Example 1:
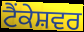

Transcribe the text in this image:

ਟੈਂਕੇਸ਼ਵਰ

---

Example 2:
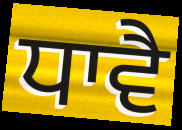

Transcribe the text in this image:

ਧਾਵੈ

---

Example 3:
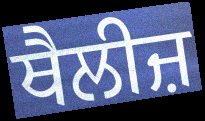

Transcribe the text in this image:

ਥੈਲੀਜ਼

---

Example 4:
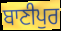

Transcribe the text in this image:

ਬਾਣੀਪੁਰ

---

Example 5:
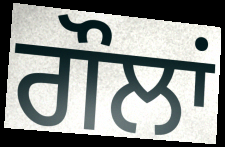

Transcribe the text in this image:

ਗੌਲਾਂ